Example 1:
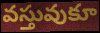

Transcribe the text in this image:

వస్తువుకూ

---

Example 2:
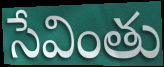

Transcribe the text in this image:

సేవింతు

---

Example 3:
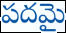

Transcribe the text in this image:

పదమై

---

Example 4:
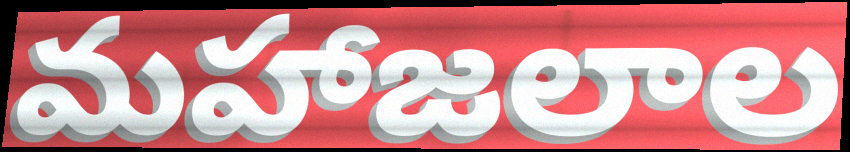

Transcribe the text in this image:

మహాజలాల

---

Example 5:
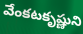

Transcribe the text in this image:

వేంకటకృష్ణుని